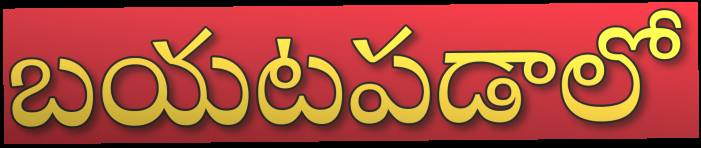
బయటపడాలో